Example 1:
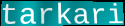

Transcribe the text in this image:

tarkari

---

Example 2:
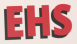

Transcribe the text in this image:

EHS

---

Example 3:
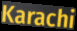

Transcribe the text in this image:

Karachi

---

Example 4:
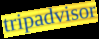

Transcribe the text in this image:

tripadvisor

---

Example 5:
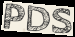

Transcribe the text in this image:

PDS